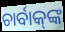
ଚାର୍ବାକ୍‌ଙ୍କ